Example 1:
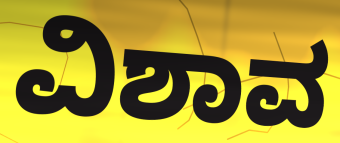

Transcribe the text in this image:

ವಿಶಾವ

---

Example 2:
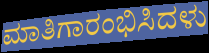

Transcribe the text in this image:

ಮಾತಿಗಾರಂಭಿಸಿದಳು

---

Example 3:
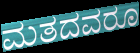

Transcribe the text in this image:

ಮತದವರೂ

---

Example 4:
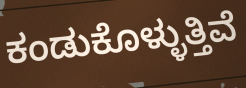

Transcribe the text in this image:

ಕಂಡುಕೊಳ್ಳುತ್ತಿವೆ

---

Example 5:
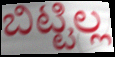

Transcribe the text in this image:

ಬಿಟ್ಟಿಲ್ಲ